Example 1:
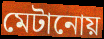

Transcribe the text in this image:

মেটানোয়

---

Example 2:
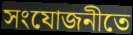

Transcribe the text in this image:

সংযোজনীতে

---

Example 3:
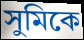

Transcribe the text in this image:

সুমিকে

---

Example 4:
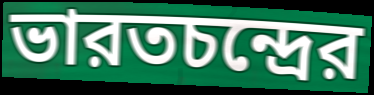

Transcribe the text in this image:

ভারতচন্দ্রের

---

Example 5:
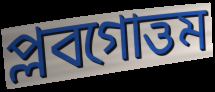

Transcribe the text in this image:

প্লবগোত্তম